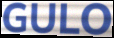
GULO